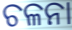
ଚଳନା